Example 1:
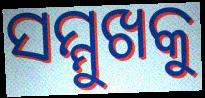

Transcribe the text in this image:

ସମ୍ମୁଖକୁ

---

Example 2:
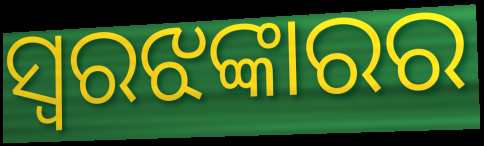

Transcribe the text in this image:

ସ୍ୱରଝଙ୍କାରର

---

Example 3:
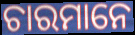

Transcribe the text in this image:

ଚାରମାନେ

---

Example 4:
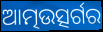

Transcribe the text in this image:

ଆତ୍ମଉତ୍ସର୍ଗର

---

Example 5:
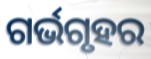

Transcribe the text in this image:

ଗର୍ଭଗୃହର